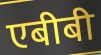
एबीबी